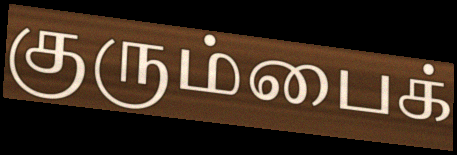
குரும்பைக்